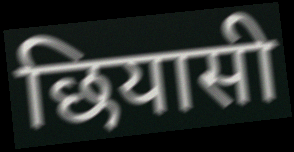
छियासी